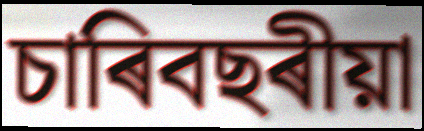
চাৰিবছৰীয়া